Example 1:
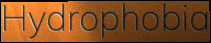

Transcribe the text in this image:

Hydrophobia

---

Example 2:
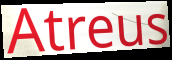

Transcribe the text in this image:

Atreus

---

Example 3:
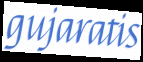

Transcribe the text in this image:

gujaratis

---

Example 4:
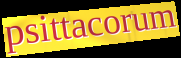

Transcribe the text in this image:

psittacorum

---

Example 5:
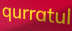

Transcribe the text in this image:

qurratul